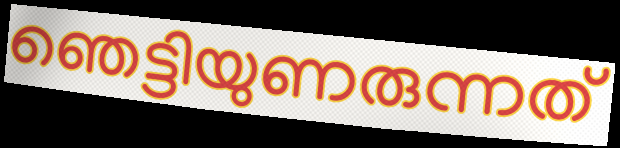
ഞെട്ടിയുണരുന്നത്